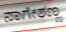
ನಾಗೇಶಣ್ಣ